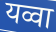
यव्वा